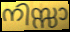
നിസ്സാ